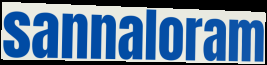
sannaloram